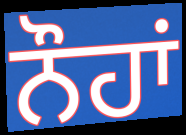
ਨੌਹਾਂ